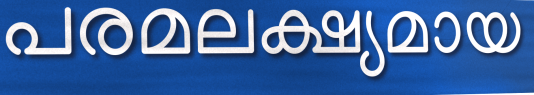
പരമലക്ഷ്യമായ